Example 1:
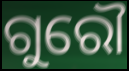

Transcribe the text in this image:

ଗୁରୌ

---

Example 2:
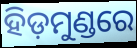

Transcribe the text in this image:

ହିଡ଼ମୁଣ୍ଡରେ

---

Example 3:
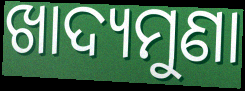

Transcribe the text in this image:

ଖାଦ୍ୟମୁଣା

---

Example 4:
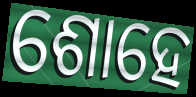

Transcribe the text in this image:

ଶୋହେ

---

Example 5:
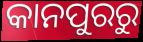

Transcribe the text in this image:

କାନପୁରରୁ